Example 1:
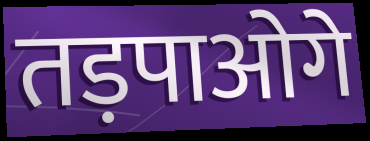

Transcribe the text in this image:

तड़पाओगे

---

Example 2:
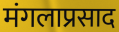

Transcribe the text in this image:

मंगलाप्रसाद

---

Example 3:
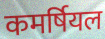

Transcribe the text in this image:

कमर्षियल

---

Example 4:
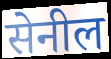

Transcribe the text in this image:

सेनील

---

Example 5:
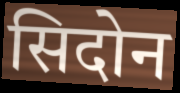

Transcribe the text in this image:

सिदोन